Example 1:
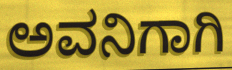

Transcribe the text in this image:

ಅವನಿಗಾಗಿ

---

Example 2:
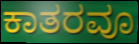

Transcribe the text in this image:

ಕಾತರವೂ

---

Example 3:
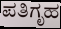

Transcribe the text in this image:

ಪತಿಗೃಹ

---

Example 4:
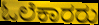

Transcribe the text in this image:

ಓಲೆಕಾರರು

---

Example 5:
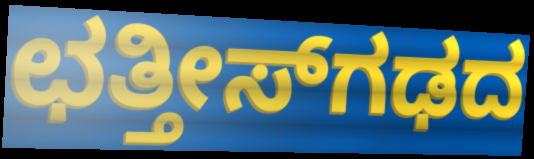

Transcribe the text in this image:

ಛತ್ತೀಸ್‌ಗಢದ